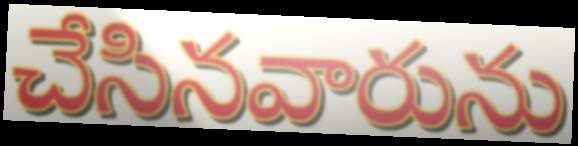
చేసినవారును